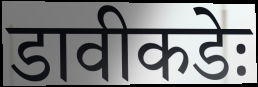
डावीकडेः